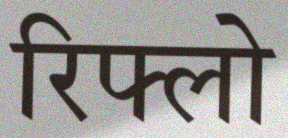
रिफ्लो